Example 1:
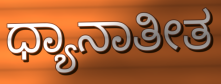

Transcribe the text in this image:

ಧ್ಯಾನಾತೀತ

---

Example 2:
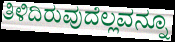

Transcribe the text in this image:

ತಿಳಿದಿರುವುದೆಲ್ಲವನ್ನೂ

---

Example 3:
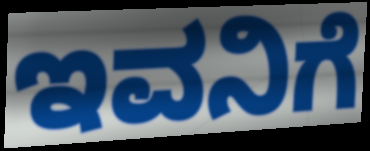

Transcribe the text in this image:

ಇವನಿಗೆ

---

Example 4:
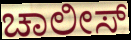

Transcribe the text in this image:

ಚಾಲೀಸ್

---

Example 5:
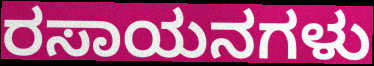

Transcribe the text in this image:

ರಸಾಯನಗಳು